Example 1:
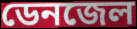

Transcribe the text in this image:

ডেনজেল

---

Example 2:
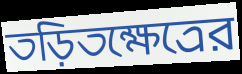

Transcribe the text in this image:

তড়িতক্ষেত্রের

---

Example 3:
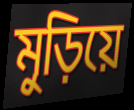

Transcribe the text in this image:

মুড়িয়ে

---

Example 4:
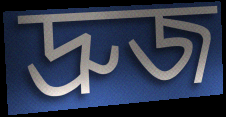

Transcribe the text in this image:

দ্রুজ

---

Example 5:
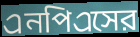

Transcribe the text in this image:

এনপিএসের